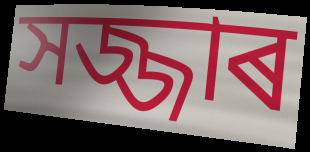
সজ্জাৰ